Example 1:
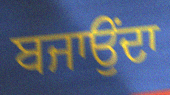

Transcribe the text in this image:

ਬਜਾਉਂਦਾ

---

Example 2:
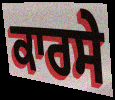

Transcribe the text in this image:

ਕਾਰਸੇ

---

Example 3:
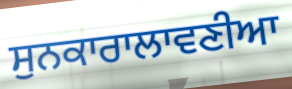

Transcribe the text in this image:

ਸੁਨਕਾਰਾਲਾਵਣੀਆ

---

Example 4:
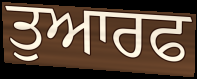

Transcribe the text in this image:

ਤੁਆਰਫ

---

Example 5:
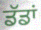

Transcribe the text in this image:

ਡੱਡਾਂ